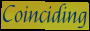
Coinciding